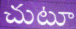
చుటూ